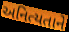
અનિત્યતાને